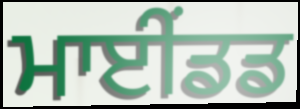
ਮਾਈਂਡਡ